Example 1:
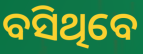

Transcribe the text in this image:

ବସିଥିବେ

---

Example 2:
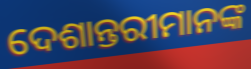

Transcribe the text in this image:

ଦେଶାନ୍ତରୀମାନଙ୍କ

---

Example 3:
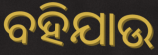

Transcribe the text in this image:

ବହିଯାଉ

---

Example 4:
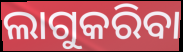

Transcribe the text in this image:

ଲାଗୁକରିବା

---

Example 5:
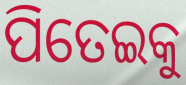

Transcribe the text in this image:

ପିତେଇକୁ